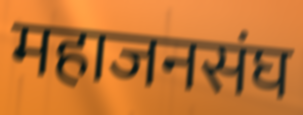
महाजनसंघ